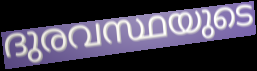
ദുരവസ്ഥയുടെ